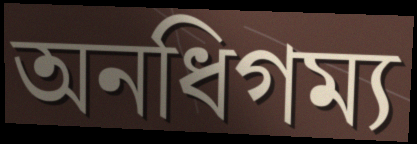
অনধিগম্য